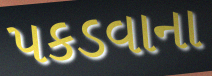
પકડવાના